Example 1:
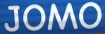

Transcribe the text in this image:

JOMO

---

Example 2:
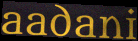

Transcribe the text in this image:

aadani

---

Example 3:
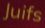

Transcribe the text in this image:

Juifs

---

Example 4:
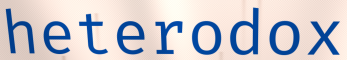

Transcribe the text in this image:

heterodox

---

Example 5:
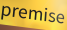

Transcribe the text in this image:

premise